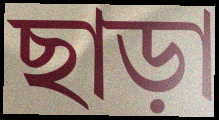
ছাড়া